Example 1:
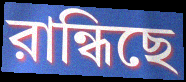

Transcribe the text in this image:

রান্ধিছে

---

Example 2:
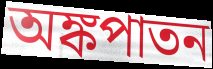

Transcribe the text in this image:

অঙ্কপাতন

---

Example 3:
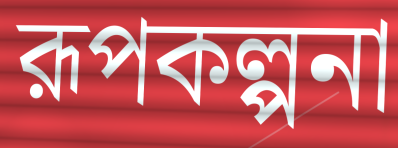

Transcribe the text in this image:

রূপকল্পনা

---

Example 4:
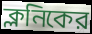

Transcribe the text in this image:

ক্লনিকের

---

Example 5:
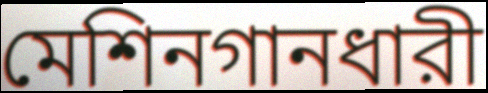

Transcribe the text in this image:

মেশিনগানধারী